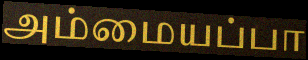
அம்மையப்பா